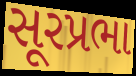
સૂરપ્રભા